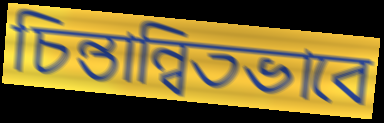
চিন্তান্বিতভাবে